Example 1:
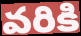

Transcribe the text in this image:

వరికి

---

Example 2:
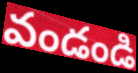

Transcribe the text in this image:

వండండి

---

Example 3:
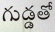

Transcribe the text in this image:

గుడ్డతో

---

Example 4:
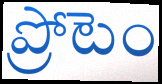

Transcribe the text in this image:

ప్రోటెం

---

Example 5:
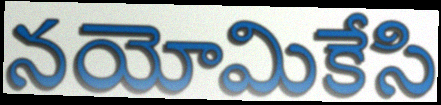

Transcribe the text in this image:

నయోమికేసి